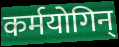
कर्मयोगिन्